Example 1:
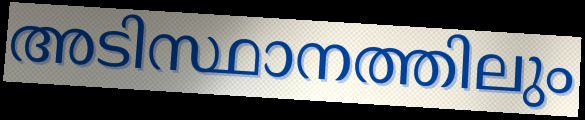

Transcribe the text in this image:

അടിസ്ഥാനത്തിലും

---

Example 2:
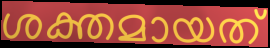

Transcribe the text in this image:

ശക്തമായത്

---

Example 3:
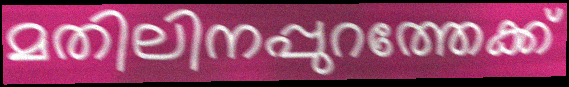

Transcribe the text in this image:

മതിലിനപ്പുറത്തേക്ക്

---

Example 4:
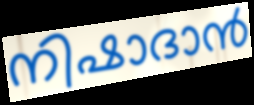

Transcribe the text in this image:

നിഷാദാൻ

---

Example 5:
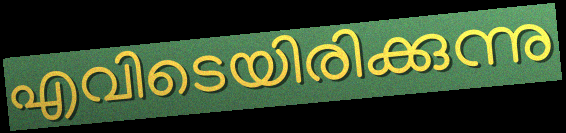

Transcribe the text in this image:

എവിടെയിരിക്കുന്നു